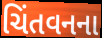
ચિંતવનના